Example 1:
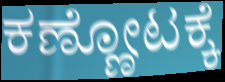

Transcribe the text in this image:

ಕಣ್ಣೋಟಕ್ಕೆ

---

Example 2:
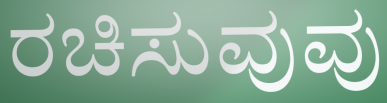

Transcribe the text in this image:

ರಚಿಸುವುವು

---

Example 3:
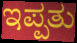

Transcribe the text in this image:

ಇಪ್ಪತು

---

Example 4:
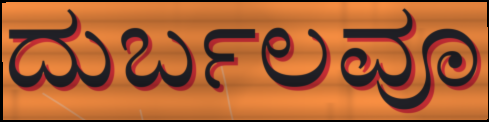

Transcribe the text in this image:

ದುರ್ಬಲವೂ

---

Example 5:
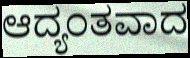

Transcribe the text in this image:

ಆದ್ಯಂತವಾದ